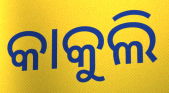
କାକୁଲି